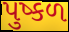
પુષ્કળ